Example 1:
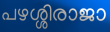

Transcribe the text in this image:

പഴശ്ശിരാജാ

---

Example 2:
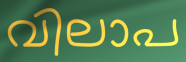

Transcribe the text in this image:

വിലാപ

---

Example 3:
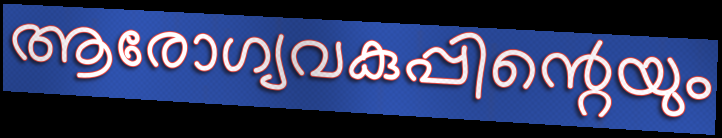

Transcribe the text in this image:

ആരോഗ്യവകുപ്പിന്റെയും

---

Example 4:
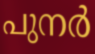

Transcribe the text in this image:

പുനർ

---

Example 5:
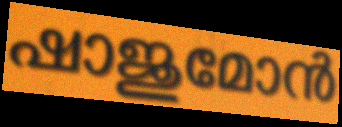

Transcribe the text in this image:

ഷാജുമോൻ